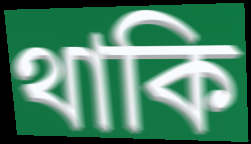
থাকি